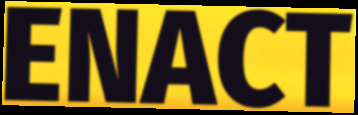
ENACT